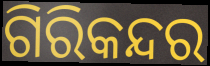
ଗିରିକନ୍ଦର